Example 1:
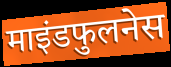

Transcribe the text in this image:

माइंडफुलनेस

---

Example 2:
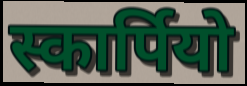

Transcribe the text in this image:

स्कार्पियो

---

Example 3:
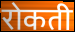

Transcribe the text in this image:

रोकती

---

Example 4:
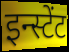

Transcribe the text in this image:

इन्स्टेंट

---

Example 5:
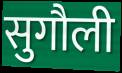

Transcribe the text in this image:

सुगौली